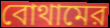
বোথামের